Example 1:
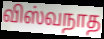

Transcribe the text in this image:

விஸ்வநாத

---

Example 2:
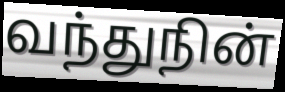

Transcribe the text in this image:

வந்துநின்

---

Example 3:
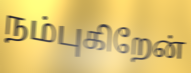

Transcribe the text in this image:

நம்புகிறேன்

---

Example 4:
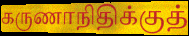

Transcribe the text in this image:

கருணாநிதிக்குத்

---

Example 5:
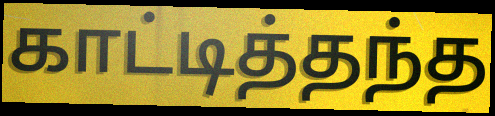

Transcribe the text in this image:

காட்டித்தந்த